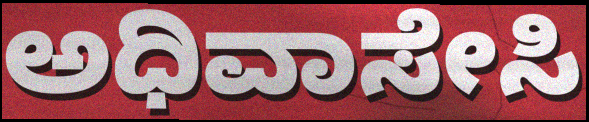
ಅಧಿವಾಸೇಸಿ